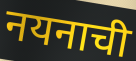
नयनाची